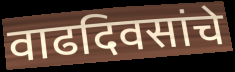
वाढदिवसांचे